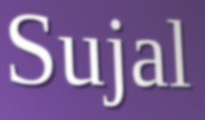
Sujal